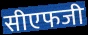
सीएफजी